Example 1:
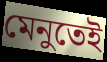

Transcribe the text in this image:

মেনুতেই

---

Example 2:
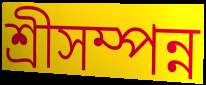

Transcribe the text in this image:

শ্রীসম্পন্ন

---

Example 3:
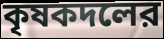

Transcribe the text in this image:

কৃষকদলের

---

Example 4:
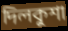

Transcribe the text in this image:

দিলকুশা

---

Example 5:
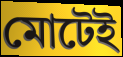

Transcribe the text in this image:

মোটেই